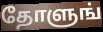
தோளுங்